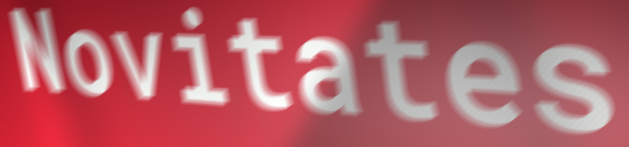
Novitates